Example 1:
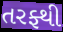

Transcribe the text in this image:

તરફ્થી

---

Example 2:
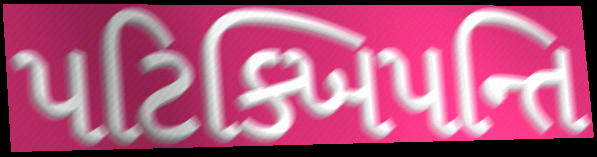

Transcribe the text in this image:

પટિક્ખિપન્તિ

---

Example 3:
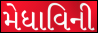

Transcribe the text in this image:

મેધાવિની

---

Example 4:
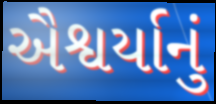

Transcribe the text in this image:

ઐશ્વર્યાનું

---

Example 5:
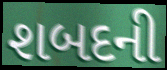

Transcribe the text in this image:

શબદની